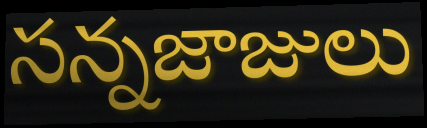
సన్నజాజులు